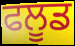
ਫਲੂਡ